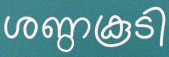
ശണ്ഠകൂടി